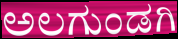
ಅಲಗುಂಡಗಿ